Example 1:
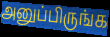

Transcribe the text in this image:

அனுப்பிருங்க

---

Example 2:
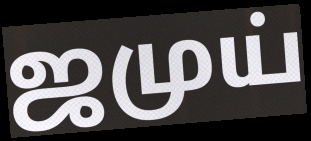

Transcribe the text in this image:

ஜமுய்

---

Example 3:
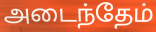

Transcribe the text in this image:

அடைந்தேம்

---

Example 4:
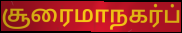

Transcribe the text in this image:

சூரைமாநகர்ப்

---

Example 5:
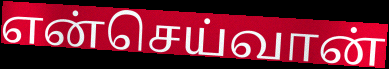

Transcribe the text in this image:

என்செய்வான்